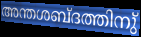
അന്തശബ്ദത്തിനു്